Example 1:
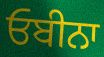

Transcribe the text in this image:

ਓਬੀਨਾ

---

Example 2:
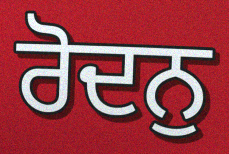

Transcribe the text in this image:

ਰੋਦਨੁ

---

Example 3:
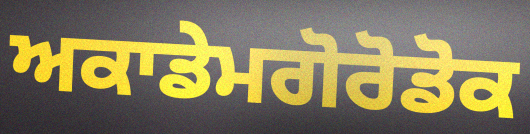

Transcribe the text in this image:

ਅਕਾਡੇਮਗੋਰੋਡੋਕ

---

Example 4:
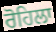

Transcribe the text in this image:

ਰੋਹਿਲਾ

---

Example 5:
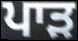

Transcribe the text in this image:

ਪਾੜ